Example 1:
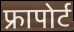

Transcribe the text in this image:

फ्रापोर्ट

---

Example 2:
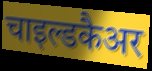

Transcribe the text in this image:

चाइल्डकैअर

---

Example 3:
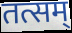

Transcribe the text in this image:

तत्सम्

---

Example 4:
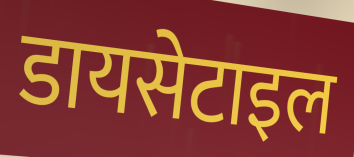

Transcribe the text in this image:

डायसेटाइल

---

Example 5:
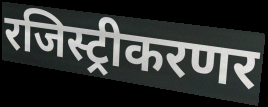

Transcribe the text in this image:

रजिस्ट्रीकरणर